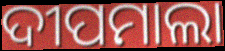
ଦୀପମାଲା